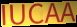
IUCAA